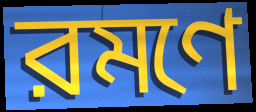
রমণে